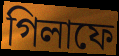
গিলাফে